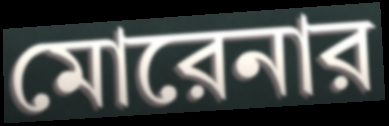
মোরেনার